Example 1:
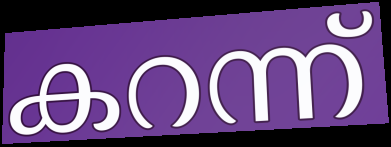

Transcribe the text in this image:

കറന്ന്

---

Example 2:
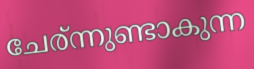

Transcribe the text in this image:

ചേര്ന്നുണ്ടാകുന്ന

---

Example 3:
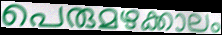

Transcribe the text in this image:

പെരുമഴക്കാലം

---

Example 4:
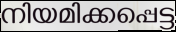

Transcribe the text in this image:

നിയമിക്കപ്പെട്ട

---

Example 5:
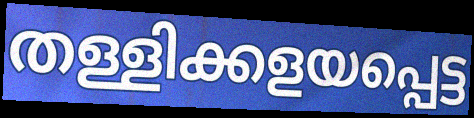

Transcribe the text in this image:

തള്ളിക്കളയപ്പെട്ട